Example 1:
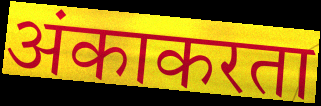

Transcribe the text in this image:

अंकाकरता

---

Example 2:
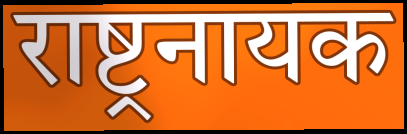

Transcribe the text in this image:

राष्ट्रनायक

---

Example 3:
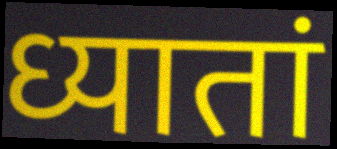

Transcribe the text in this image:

ध्यातां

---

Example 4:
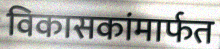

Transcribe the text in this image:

विकासकांमार्फत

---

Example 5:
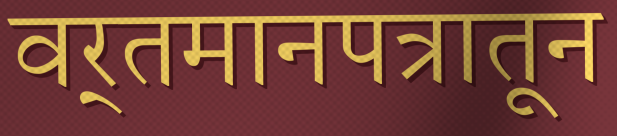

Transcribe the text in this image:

वर्तमानपत्रातून